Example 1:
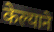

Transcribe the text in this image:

केल्‍याने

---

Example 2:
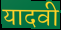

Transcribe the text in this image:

यादवी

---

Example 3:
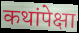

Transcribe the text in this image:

कथांपेक्षा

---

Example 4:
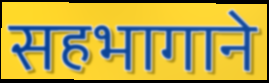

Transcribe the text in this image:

सहभागाने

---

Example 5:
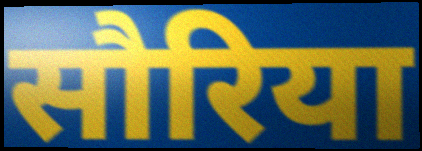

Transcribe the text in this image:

सौरिया